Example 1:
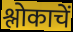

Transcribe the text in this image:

श्लोकाचें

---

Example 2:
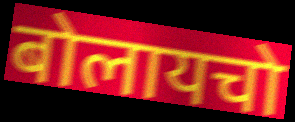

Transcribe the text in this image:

बोलायचो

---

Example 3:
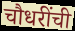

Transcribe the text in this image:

चौधरींची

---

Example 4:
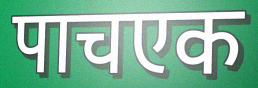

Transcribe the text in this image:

पाचएक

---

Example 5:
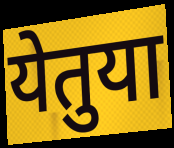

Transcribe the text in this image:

येतुया